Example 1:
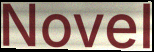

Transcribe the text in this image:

Novel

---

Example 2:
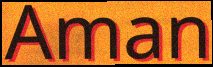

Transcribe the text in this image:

Aman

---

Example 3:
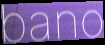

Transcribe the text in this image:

bano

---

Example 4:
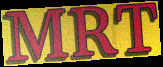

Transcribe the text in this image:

MRT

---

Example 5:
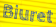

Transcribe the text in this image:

Biuret